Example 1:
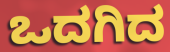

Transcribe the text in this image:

ಒದಗಿದ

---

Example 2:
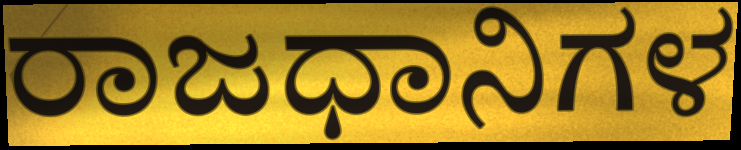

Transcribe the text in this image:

ರಾಜಧಾನಿಗಳ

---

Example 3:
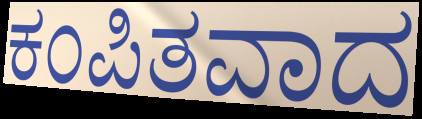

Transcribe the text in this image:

ಕಂಪಿತವಾದ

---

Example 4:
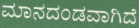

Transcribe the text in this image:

ಮಾನದಂಡವಾಗಿದೆ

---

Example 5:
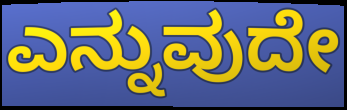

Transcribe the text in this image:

ಎನ್ನುವುದೇ